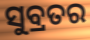
ସୁବ୍ରତର